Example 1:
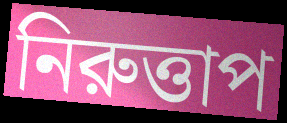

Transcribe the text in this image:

নিরুত্তাপ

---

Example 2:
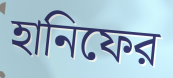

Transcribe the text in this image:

হানিফের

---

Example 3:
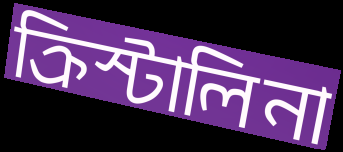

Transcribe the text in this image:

ক্রিস্টালিনা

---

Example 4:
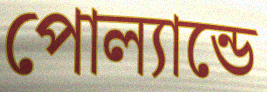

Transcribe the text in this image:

পোল্যান্ডে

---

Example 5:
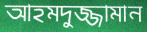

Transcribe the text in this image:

আহমদুজ্জামান